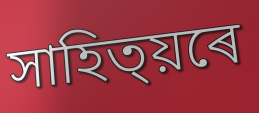
সাহিত্য়ৰে